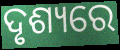
ଦୃଶ୍ୟରେ